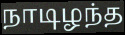
நாடிழந்த